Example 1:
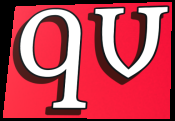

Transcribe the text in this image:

qu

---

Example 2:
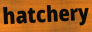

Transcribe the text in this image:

hatchery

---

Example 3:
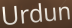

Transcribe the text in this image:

Urdun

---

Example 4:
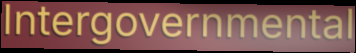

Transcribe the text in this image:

Intergovernmental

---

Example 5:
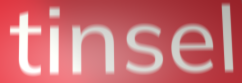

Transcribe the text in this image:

tinsel